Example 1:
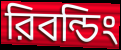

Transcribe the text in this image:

রিবন্ডিং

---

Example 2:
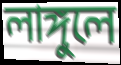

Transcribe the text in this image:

লাঙ্গুলে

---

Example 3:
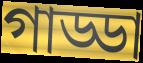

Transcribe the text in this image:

গাড্ডা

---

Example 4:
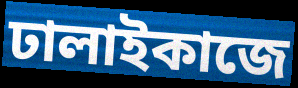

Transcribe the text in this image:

ঢালাইকাজে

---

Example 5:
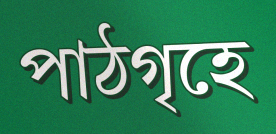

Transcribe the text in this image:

পাঠগৃহে